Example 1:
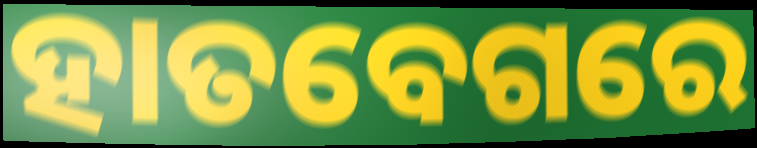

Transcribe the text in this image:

ହାତବେଗରେ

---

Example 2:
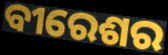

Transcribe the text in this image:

ବୀରେଶର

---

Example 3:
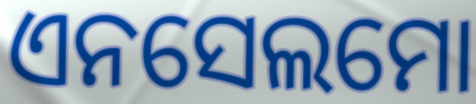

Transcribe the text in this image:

ଏନସେଲମୋ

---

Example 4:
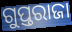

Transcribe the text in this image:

ଗୁପ୍ତରାଜା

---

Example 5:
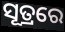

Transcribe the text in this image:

ସୂତ୍ରରେ